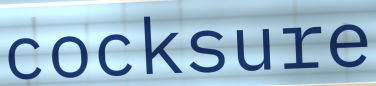
cocksure